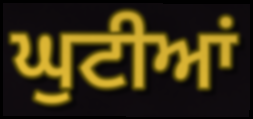
ਘੁਟੀਆਂ